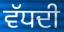
ਵੱਧਦੀ